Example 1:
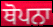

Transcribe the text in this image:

ਥੋਪਨਾ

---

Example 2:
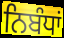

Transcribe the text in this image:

ਨਿਬੰਧਾਂ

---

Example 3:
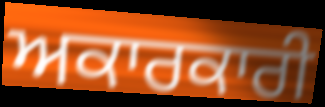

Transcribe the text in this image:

ਅਕਾਰਕਾਰੀ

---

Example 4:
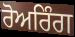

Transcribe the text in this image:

ਰੋਅਰਿੰਗ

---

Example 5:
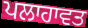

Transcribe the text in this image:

ਪਲਾਹਾਵਤ